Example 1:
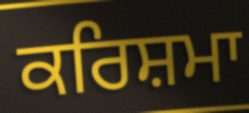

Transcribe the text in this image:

ਕਰਿਸ਼ਮਾ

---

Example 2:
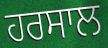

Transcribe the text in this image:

ਹਰਸਾਲ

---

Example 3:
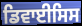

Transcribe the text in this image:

ਡਿਵਾਈਸਿਸ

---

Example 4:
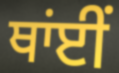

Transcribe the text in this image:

ਥਾਂਈਂ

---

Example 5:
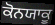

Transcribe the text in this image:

ਕੋਨਯਾਕੂ